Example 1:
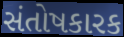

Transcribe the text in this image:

સંતોષકારક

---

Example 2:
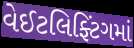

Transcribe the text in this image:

વેઈટલિફ્ટિંગમાં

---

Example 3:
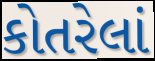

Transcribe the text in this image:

કોતરેલાં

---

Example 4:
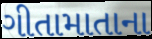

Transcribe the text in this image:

ગીતામાતાના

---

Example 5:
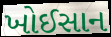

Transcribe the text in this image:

ખોઈસાન